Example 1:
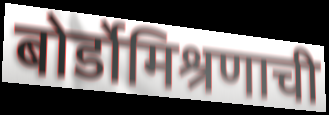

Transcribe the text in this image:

बोर्डोमिश्रणाची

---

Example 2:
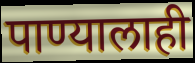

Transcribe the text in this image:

पाण्यालाही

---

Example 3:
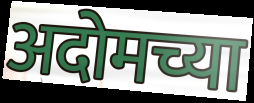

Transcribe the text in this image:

अदोमच्या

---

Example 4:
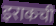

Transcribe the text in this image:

इराकची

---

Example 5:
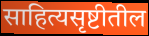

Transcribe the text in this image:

साहित्यसृष्टीतील